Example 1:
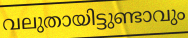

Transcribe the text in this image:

വലുതായിട്ടുണ്ടാവും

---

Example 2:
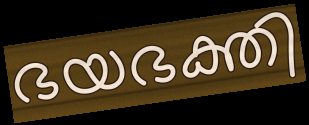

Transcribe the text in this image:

ഭയഭക്തി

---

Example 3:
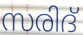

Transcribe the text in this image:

സരിദ്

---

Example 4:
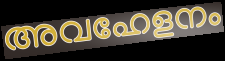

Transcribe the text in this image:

അവഹേളനം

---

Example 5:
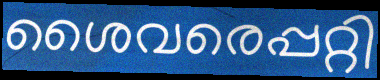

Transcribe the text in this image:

ശൈവരെപ്പറ്റി